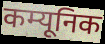
कम्यूनिक